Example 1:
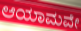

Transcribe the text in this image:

ಆಯಾಮವೇ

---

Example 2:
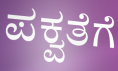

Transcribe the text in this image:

ಪಕ್ವತೆಗೆ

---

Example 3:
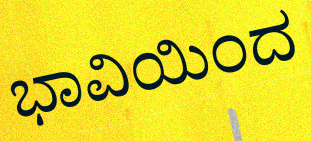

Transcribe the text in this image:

ಭಾವಿಯಿಂದ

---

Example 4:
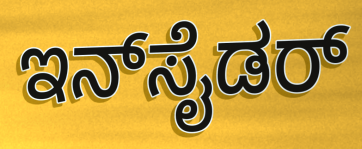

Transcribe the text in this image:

ಇನ್‌ಸೈಡರ್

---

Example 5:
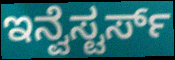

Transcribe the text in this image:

ಇನ್ವೆಸ್ಟರ್ಸ್